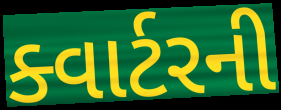
ક્વાર્ટરની